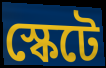
স্কেটে